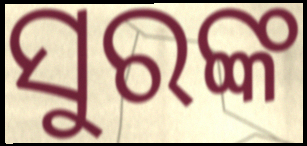
ସୁରଙ୍କ